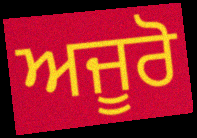
ਅਜੂਰੋ